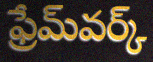
ఫ్రేమ్‌వర్క్